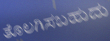
ತೊಲಗಿಸಬಹುದು